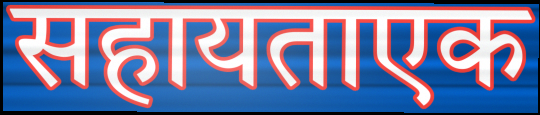
सहायताएक